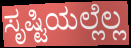
ಸೃಷ್ಟಿಯಲ್ಲೆಲ್ಲ